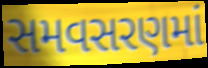
સમવસરણમાં